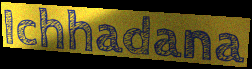
Ichhadana